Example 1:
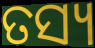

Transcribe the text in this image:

ତସ୍ୟ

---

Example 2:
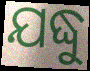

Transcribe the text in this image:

ଯଦ୍ଧୁ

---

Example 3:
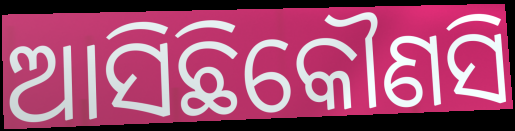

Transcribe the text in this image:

ଆସିଛିକୌଣସି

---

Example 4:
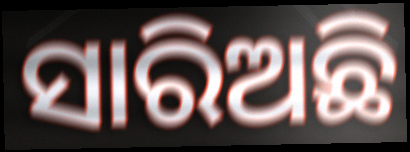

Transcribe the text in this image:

ସାରିଅଛି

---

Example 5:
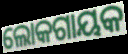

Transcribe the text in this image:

ଲୋକଗାୟକ